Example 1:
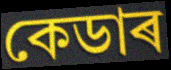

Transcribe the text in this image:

কেডাৰ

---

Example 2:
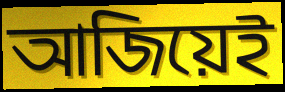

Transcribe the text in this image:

আজিয়েই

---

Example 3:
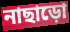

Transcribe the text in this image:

নাছাড়ো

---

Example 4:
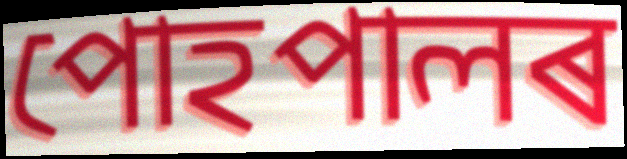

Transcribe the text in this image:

পোহপালৰ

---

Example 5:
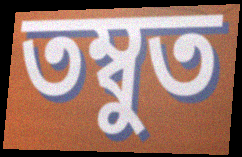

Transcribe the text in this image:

তম্বুত